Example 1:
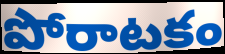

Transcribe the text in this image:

పోరాటకం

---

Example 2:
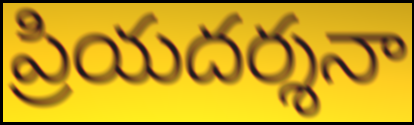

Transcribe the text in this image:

ప్రియదర్శనా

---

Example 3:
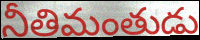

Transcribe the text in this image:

నీతిమంతుడు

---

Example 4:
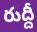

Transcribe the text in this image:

రుద్దీ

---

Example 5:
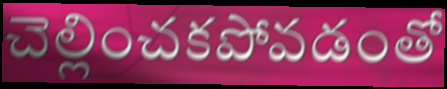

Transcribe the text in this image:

చెల్లించకపోవడంతో